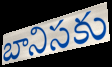
బానిసకు